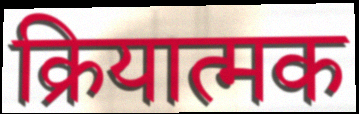
क्रियात्मक